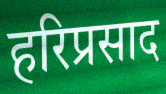
हरिप्रसाद